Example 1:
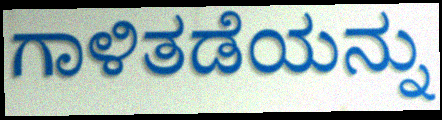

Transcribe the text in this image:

ಗಾಳಿತಡೆಯನ್ನು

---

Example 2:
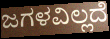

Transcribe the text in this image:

ಜಗಳವಿಲ್ಲದೆ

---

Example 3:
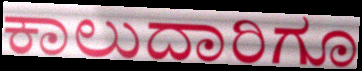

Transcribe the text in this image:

ಕಾಲುದಾರಿಗೂ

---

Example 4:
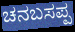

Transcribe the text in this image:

ಚನಬಸಪ್ಪ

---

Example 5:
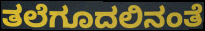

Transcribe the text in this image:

ತಲೆಗೂದಲಿನಂತೆ